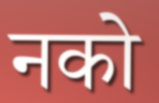
नको